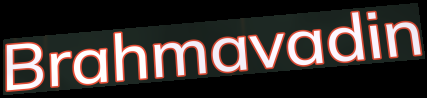
Brahmavadin